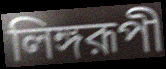
লিঙ্গরূপী